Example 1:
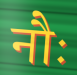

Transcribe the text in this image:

नौः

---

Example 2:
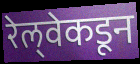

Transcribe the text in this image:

रेल्वेकडून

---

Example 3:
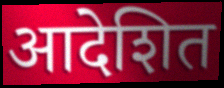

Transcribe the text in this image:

आदेशित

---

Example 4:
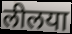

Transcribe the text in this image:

लीलया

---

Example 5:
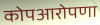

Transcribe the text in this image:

कोपआरोपणा